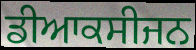
ਡੀਆਕਸੀਜਨ